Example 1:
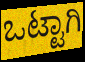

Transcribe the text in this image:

ಒಟ್ಟಾಗಿ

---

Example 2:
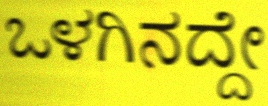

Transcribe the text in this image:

ಒಳಗಿನದ್ದೇ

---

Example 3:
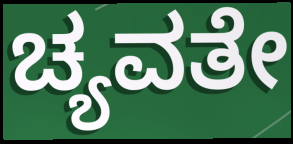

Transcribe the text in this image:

ಚ್ಯವತೇ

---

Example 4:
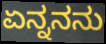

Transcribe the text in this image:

ಏನ್ನನನು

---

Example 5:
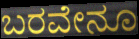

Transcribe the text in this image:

ಬರವೇನೂ